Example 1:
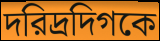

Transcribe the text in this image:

দরিদ্রদিগকে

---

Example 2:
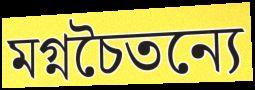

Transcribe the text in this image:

মগ্নচৈতন্যে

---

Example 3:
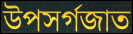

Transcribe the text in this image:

উপসর্গজাত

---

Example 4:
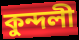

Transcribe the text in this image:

কুন্দলী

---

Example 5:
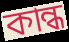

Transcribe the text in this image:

কান্ধ